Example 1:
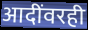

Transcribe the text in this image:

आदींवरही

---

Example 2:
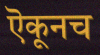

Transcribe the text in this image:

ऎकूनच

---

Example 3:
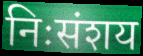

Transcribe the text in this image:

निःसंशय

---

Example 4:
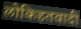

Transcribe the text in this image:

लोकिहतवादी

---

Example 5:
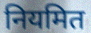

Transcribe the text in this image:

नियमित